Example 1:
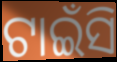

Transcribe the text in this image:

ଟାଇଁସି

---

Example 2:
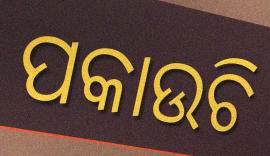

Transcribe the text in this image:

ପକାଉଚି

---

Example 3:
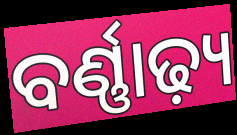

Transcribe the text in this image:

ବର୍ଣ୍ଣାଢ଼୍ୟ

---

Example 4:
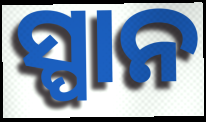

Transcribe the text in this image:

ସ୍ପାନ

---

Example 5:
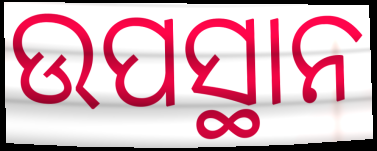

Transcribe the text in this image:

ଉପସ୍ଥାନ